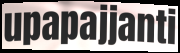
upapajjanti